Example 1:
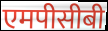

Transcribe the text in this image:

एमपीसीबी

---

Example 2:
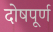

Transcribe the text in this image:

दोषपूर्ण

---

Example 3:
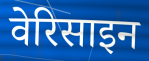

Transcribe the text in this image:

वेरिसाइन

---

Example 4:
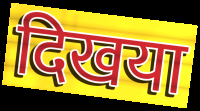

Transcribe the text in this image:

दिखया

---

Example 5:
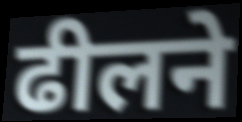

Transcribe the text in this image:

ढीलने